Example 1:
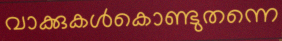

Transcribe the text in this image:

വാക്കുകൾകൊണ്ടുതന്നെ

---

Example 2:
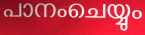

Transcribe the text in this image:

പാനംചെയ്യും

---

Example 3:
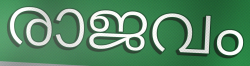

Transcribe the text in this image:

രാജവം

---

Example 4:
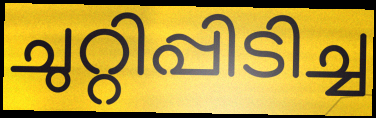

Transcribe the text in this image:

ചുറ്റിപ്പിടിച്ച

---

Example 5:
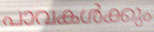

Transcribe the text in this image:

പാവകൾക്കും